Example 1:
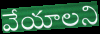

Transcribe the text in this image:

వేయాలని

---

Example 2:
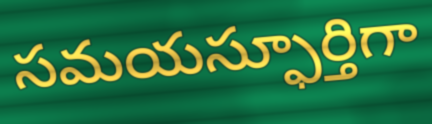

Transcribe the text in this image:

సమయస్ఫూర్తిగా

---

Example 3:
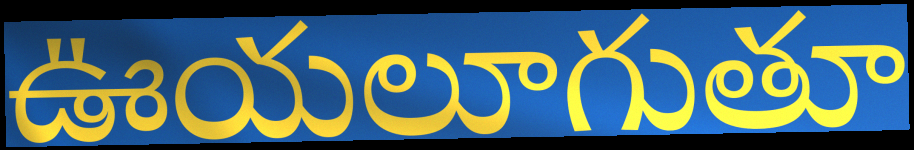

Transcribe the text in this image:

ఊయలూగుతూ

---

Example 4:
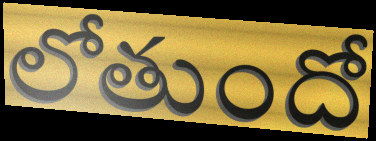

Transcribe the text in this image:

లోతుందో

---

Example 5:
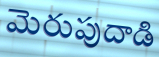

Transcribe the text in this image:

మెరుపుదాడి